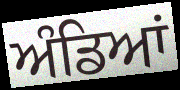
ਅੰਡਿਆਂ